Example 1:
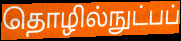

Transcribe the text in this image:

தொழில்நுட்பப்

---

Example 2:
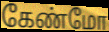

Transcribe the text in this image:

கேண்மோ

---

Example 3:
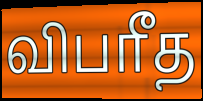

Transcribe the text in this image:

விபரீத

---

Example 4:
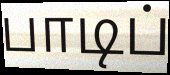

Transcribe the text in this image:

பாடிப்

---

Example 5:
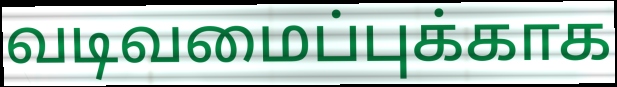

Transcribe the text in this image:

வடிவமைப்புக்காக